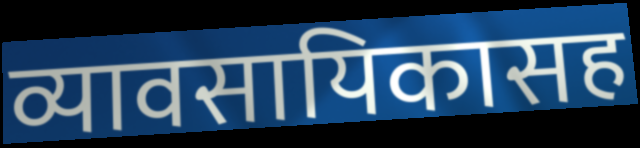
व्यावसायिकासह